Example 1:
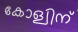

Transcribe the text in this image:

കോള്വിന്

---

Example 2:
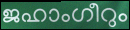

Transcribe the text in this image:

ജഹാംഗീറും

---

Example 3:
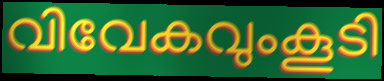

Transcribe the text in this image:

വിവേകവുംകൂടി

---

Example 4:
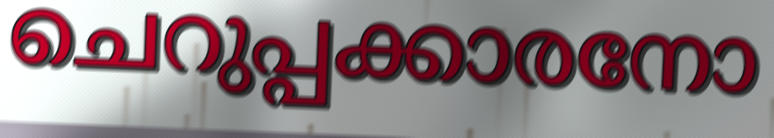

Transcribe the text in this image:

ചെറുപ്പക്കാരനോ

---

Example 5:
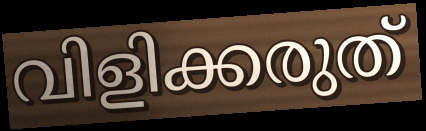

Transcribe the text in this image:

വിളിക്കരുത്